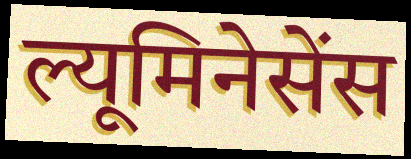
ल्यूमिनेसेंस